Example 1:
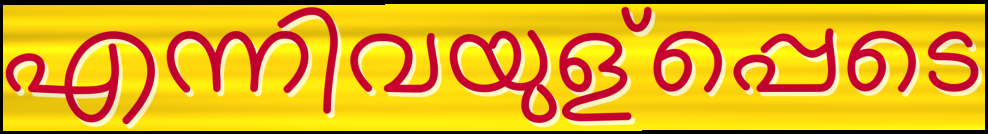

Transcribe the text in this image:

എന്നിവയുള്പ്പെടെ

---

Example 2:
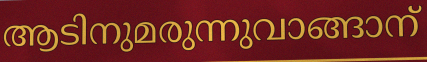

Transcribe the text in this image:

ആടിനുമരുന്നുവാങ്ങാന്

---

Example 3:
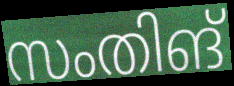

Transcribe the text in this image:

സംതിങ്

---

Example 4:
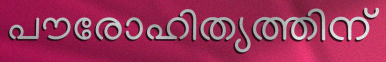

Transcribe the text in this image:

പൗരോഹിത്യത്തിന്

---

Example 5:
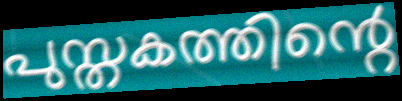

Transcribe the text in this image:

പുസ്തകത്തിന്റെ